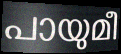
പായുമീ